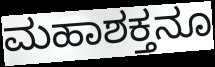
ಮಹಾಶಕ್ತನೂ